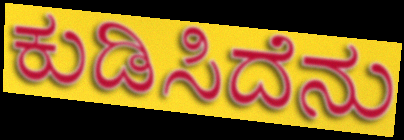
ಕುಡಿಸಿದೆನು